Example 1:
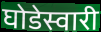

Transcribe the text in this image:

घोडेस्वारी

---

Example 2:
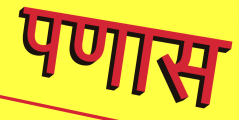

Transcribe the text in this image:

पणास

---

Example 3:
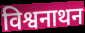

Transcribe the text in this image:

विश्वनाथन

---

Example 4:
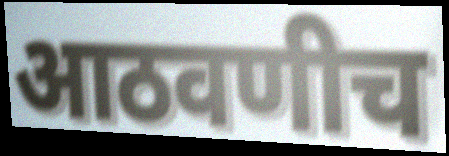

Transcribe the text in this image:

आठवणीच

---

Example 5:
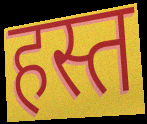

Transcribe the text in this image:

हस्त